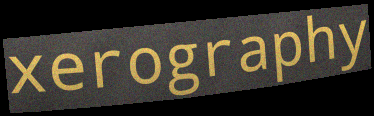
xerography